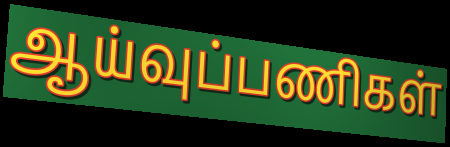
ஆய்வுப்பணிகள்